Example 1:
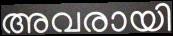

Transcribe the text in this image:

അവരായി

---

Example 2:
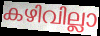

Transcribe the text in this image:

കഴിവില്ലാ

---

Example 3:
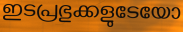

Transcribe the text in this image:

ഇടപ്രഭുക്കളുടേയോ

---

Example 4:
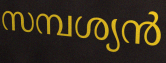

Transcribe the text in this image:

സമ്പശ്യൻ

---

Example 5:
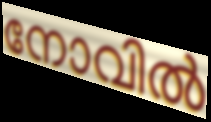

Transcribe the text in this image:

നോവിൽ